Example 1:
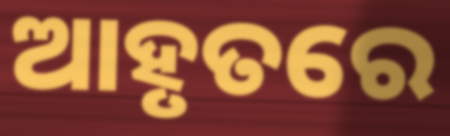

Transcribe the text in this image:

ଆହୃତରେ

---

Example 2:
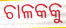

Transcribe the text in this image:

ଚାଳକକୁ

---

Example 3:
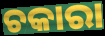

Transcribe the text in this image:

ଚକାରା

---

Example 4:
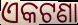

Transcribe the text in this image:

ଏକଟଣା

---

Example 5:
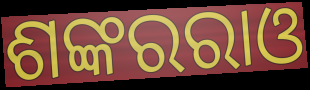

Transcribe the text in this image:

ଶଙ୍କରରାଓ